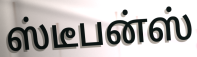
ஸ்டீபன்ஸ்